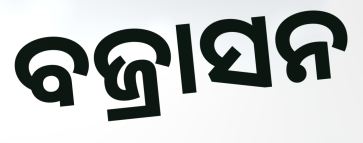
ବଜ୍ରାସନ